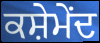
ਕਸ਼ੇਮੇਂਦ